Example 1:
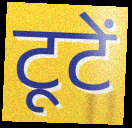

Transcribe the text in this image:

टूटें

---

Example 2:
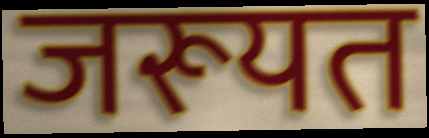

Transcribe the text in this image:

जरूयत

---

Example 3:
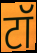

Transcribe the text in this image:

टॉ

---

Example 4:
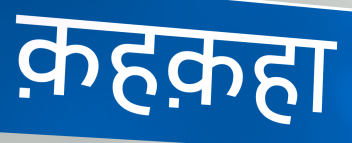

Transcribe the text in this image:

क़हक़हा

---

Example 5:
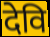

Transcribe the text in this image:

देवि